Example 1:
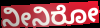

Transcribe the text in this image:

ನೀನಿರೋ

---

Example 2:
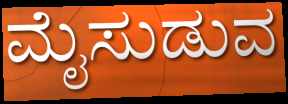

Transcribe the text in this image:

ಮೈಸುಡುವ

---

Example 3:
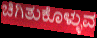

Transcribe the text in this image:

ಚಿಗಿತುಕೊಳ್ಳುವ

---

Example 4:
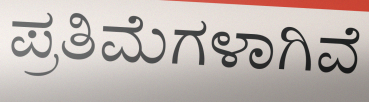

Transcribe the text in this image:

ಪ್ರತಿಮೆಗಳಾಗಿವೆ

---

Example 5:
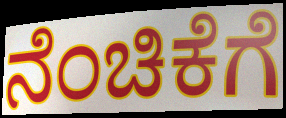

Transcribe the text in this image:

ನೆಂಚಿಕೆಗೆ